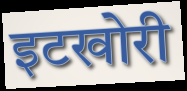
इटखोरी